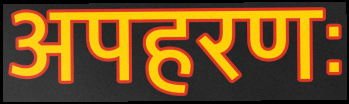
अपहरणः